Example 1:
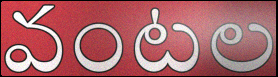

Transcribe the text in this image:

వంటల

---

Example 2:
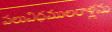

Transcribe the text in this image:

పలువిధములరాళ్లను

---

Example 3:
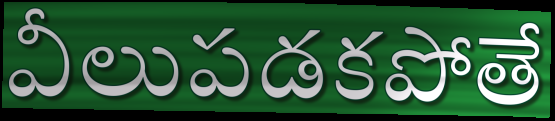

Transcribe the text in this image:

వీలుపడకపోతే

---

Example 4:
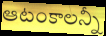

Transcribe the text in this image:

ఆటంకాలన్నీ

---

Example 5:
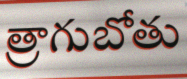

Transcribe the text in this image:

త్రాగుబోతు